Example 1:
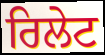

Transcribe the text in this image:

ਰਿਲੇਟ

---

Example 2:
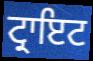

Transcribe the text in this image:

ਟ੍ਰਾਇਟ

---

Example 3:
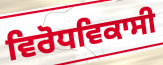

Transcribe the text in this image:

ਵਿਰੋਧਵਿਕਾਸੀ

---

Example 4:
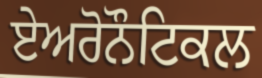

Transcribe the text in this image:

ਏਅਰੋਨੌਟਿਕਲ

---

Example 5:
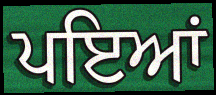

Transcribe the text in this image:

ਪਇਆਂ